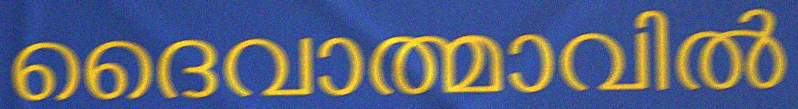
ദൈവാത്മാവിൽ